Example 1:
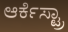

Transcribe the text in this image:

ಆರ್ಕೆಸ್ಟ್ರಾ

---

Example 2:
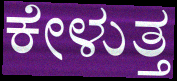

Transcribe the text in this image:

ಕೇಳುತ್ತ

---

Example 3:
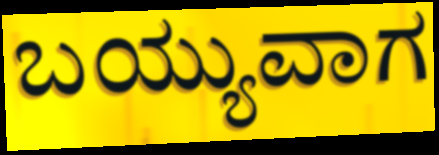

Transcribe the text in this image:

ಬಯ್ಯುವಾಗ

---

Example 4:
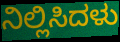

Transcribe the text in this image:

ನಿಲ್ಲಿಸಿದಳು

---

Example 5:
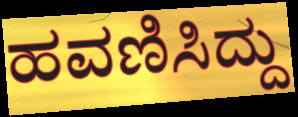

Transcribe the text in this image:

ಹವಣಿಸಿದ್ದು